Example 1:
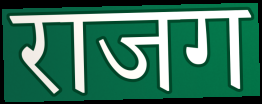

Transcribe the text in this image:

राजग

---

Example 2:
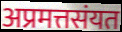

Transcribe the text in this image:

अप्रमत्तसंयत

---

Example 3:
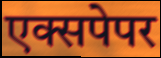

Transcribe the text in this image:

एक्सपेपर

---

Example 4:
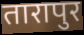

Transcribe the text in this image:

तारापुर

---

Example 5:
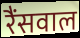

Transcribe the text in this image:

रैंसवाल